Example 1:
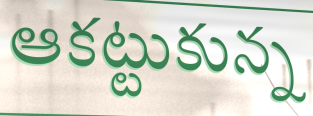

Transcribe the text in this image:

ఆకట్టుకున్న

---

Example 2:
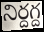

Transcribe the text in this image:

నిర్దగ్ద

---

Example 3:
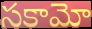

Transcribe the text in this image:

సకామో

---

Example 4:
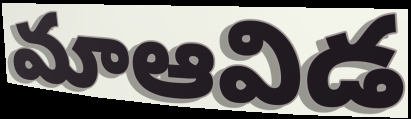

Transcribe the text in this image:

మాఆవిడ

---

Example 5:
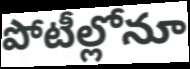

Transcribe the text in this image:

పోటీల్లోనూ